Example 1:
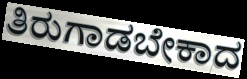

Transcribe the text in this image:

ತಿರುಗಾಡಬೇಕಾದ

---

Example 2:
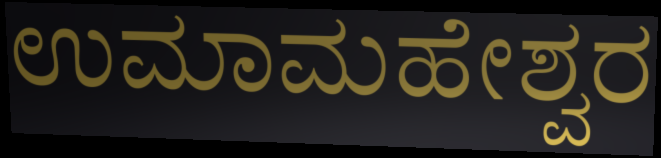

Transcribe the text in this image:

ಉಮಾಮಹೇಶ್ವರ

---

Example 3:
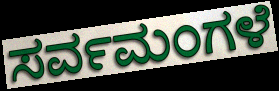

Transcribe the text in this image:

ಸರ್ವಮಂಗಳೆ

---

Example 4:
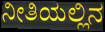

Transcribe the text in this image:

ನೀತಿಯಲ್ಲಿನ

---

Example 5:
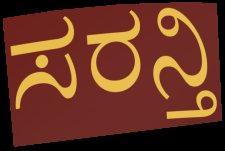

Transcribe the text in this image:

ಸರನ್ತಿ